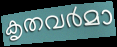
കൃതവർമാ